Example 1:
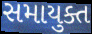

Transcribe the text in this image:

સમાયુક્ત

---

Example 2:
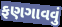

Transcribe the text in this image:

ફણગાવવું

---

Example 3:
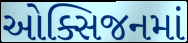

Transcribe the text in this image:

ઓક્સિજનમાં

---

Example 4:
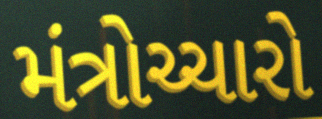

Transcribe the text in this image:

મંત્રોચ્ચારો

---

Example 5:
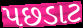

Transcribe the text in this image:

પછડાટ